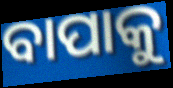
ବାପାକୁ